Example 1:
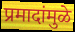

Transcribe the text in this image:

प्रमादांमुळे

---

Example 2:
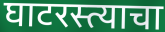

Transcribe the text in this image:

घाटरस्त्याचा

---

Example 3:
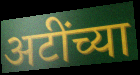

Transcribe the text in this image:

अटींच्या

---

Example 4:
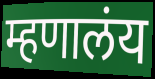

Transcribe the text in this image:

म्हणालंय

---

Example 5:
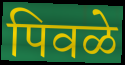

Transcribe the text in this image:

पिवळे